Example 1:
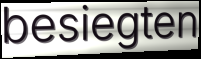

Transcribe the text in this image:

besiegten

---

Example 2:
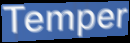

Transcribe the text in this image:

Temper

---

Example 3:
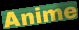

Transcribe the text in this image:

Anime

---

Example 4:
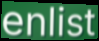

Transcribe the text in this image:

enlist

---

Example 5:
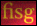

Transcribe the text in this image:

fisg